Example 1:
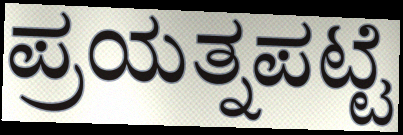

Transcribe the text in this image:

ಪ್ರಯತ್ನಪಟ್ಟೆ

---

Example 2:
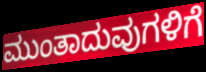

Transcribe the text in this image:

ಮುಂತಾದುವುಗಳಿಗೆ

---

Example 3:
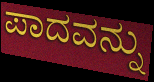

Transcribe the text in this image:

ಪಾದವನ್ನು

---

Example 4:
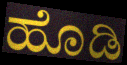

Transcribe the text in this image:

ಹೊಡಿ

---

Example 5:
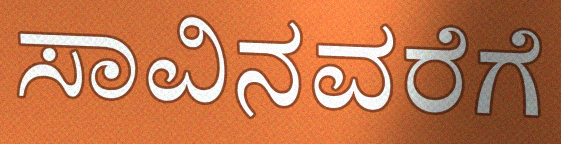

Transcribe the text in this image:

ಸಾವಿನವರೆಗೆ